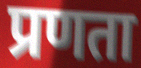
प्रणता